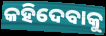
କହିଦେବାକୁ